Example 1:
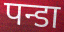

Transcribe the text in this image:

पन्डा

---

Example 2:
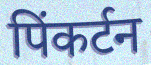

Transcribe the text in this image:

पिंकर्टन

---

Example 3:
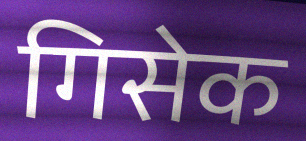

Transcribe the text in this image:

गिसेक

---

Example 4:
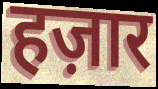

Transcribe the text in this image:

हज़ार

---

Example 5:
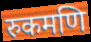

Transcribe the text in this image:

रुकमणि